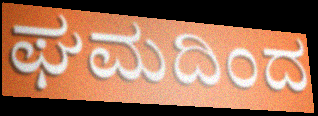
ಘಮದಿಂದ